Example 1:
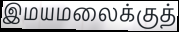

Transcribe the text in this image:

இமயமலைக்குத்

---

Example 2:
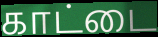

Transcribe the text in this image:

காட்டை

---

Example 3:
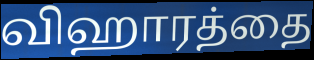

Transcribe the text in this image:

விஹாரத்தை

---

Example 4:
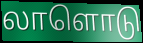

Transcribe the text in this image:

லாளொடு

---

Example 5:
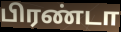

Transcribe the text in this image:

பிரண்டா